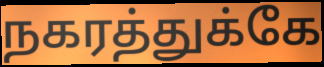
நகரத்துக்கே